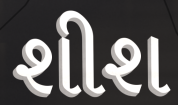
શીશ